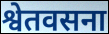
श्वेतवसना